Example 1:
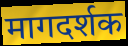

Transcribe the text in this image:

मागदर्शक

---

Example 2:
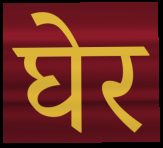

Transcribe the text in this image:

घेर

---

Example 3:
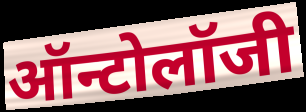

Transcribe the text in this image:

ऑन्टोलॉजी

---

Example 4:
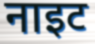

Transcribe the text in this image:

नाइट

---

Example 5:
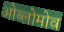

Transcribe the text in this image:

ओब्लोमोव